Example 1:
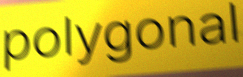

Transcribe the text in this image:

polygonal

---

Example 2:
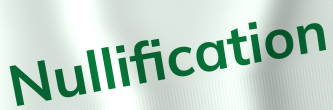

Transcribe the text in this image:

Nullification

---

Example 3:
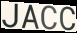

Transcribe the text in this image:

JACC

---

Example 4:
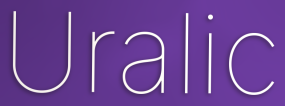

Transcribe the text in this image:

Uralic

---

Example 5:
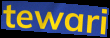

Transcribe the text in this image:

tewari